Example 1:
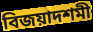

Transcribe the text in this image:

বিজয়াদশমী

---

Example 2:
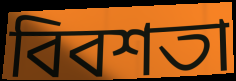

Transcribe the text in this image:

বিবশতা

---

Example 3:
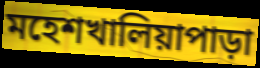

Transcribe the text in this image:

মহেশখালিয়াপাড়া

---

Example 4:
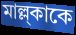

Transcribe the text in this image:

মাল্ল্কাকে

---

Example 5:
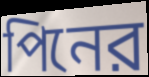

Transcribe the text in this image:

পিনের